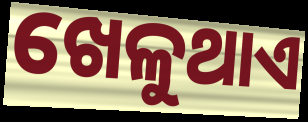
ଖେଳୁଥାଏ